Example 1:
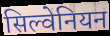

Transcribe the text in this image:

सिल्वेनियन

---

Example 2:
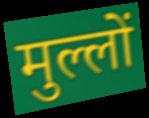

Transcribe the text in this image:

मुल्लों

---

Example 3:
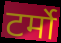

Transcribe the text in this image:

टर्मो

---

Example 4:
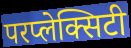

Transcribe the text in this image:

परप्लेक्सिटी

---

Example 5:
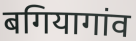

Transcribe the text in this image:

बगियागांव